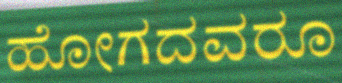
ಹೋಗದವರೂ